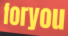
foryou